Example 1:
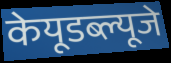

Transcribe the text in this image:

केयूडब्ल्यूजे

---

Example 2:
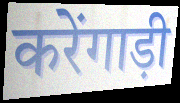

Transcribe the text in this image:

करेंगाड़ी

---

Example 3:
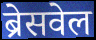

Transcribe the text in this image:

ब्रेसवेल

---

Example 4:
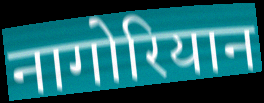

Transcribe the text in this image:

नागोरियान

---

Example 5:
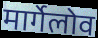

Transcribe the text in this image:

मार्गेलोव